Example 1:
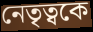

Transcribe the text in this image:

নেতৃত্বকে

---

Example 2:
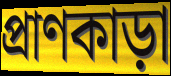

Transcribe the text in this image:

প্রাণকাড়া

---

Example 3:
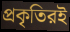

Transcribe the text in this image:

প্রকৃতিরই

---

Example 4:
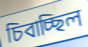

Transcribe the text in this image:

চিবাচ্ছিল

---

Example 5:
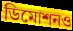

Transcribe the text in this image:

ডিমোশনও